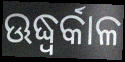
ଊଦ୍ଧ୍ୱର୍କାଳ